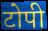
टोपी